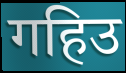
गहिउ